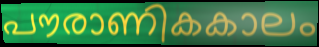
പൗരാണികകാലം